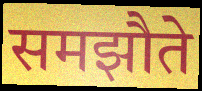
समझौते